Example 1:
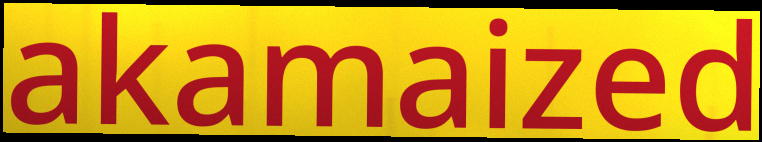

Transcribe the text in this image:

akamaized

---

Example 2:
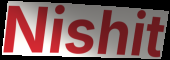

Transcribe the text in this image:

Nishit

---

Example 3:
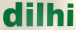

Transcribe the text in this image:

dilhi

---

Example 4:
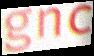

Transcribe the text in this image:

gnc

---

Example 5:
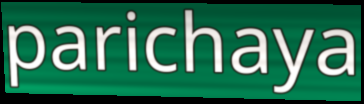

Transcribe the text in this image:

parichaya